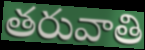
తరువాతి